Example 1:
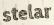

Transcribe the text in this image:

stelar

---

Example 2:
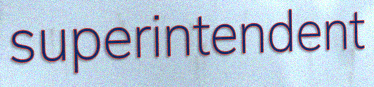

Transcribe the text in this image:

superintendent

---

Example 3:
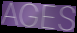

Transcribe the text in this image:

AGES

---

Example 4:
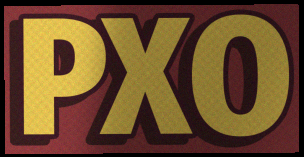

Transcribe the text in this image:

PXO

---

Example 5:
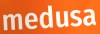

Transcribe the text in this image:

medusa